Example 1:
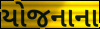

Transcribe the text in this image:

યોજનાના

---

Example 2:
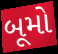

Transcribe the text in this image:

બૂમો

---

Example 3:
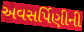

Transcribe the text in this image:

અવસર્પિણીની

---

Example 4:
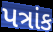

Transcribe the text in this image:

પત્રાંક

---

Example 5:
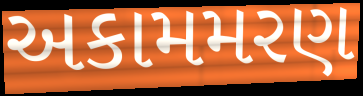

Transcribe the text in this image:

અકામમરણ